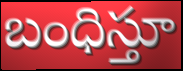
బంధిస్తూ